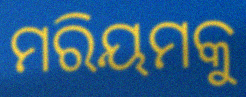
ମରିୟମକୁ